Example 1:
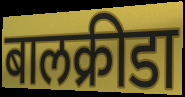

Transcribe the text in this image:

बालक्रीडा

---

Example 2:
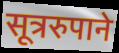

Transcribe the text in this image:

सूत्ररुपाने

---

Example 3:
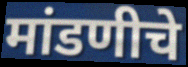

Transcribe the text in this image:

मांडणीचे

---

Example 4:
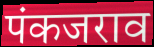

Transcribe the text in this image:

पंकजराव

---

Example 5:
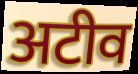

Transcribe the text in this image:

अटीव